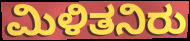
ಮಿಳಿತನಿರು